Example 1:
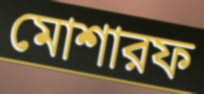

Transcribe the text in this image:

মোশারফ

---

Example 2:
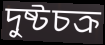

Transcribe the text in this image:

দুষ্টচক্র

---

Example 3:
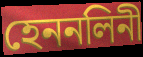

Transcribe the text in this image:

হেননলিনী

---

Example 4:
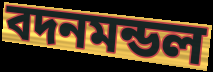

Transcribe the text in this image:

বদনমন্ডল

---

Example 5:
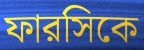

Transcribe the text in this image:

ফারসিকে